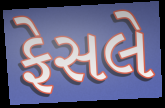
ફેસલે